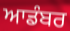
ਆਡੰਬਰ